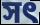
সৎ